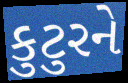
કુટુરને